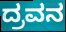
ದ್ರವನ